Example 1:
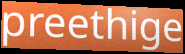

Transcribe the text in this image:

preethige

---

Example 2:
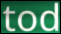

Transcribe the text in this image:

tod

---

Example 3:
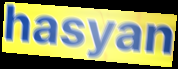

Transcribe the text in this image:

hasyan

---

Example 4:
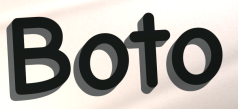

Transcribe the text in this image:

Boto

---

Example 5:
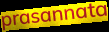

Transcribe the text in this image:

prasannata